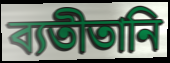
ব্যতীতানি